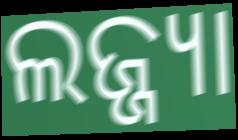
ଲଜ୍ଜ୍ୟା